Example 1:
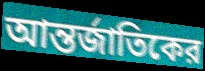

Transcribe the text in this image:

আন্তর্জাতিকের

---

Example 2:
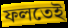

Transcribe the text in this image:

ফলতেই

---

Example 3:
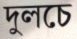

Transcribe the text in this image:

দুলচে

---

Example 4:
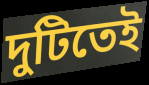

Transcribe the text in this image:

দুটিতেই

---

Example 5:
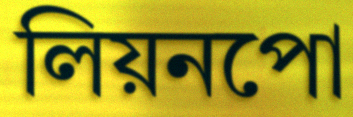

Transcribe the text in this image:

লিয়নপো